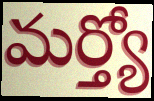
మర్త్యో